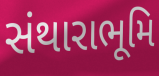
સંથારાભૂમિ